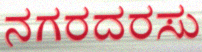
ನಗರದರಸು